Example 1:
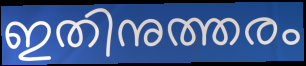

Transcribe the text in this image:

ഇതിനുത്തരം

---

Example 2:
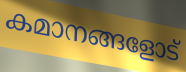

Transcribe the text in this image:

കമാനങ്ങളോട്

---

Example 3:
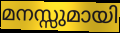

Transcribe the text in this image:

മനസ്സുമായി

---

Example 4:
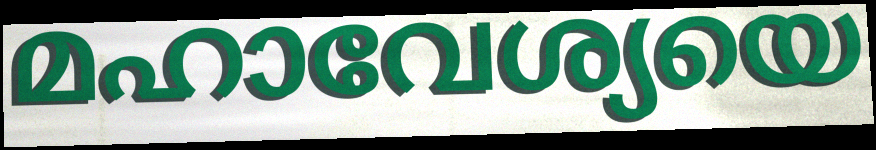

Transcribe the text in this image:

മഹാവേശ്യയെ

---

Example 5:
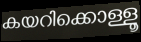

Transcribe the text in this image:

കയറിക്കൊള്ളൂ